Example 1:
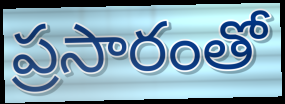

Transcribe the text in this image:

ప్రసారంతో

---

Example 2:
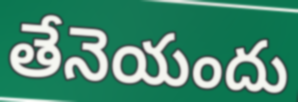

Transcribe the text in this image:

తేనెయందు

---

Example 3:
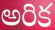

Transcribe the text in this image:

అరిక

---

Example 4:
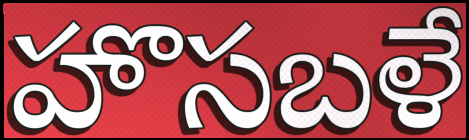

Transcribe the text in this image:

హొసబళే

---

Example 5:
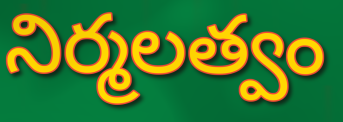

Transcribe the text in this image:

నిర్మలత్వం